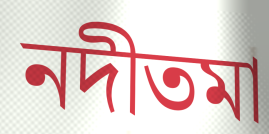
নদীতমা